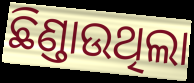
ଛିଣ୍ଡାଉଥିଲା